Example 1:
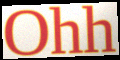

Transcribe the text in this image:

Ohh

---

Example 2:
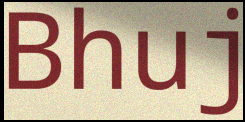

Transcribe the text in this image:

Bhuj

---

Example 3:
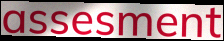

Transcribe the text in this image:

assesment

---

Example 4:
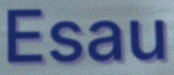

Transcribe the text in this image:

Esau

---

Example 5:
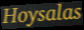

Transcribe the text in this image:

Hoysalas